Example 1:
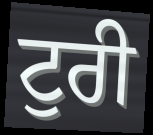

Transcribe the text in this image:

ਟੁਰੀ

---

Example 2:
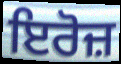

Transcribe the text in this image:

ਇਰੋਜ਼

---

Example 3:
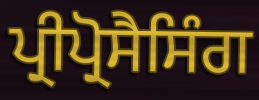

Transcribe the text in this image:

ਪ੍ਰੀਪ੍ਰੋਸੈਸਿੰਗ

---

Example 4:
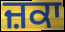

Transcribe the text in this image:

ਜ਼ਕਾ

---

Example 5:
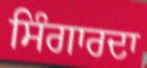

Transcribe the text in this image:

ਸਿੰਗਾਰਦਾ